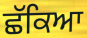
ਛੱਕਿਆ